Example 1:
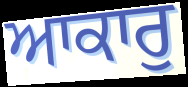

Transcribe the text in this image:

ਆਕਾਰੁ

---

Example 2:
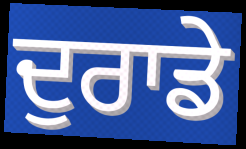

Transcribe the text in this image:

ਦੁਰਾਡੇ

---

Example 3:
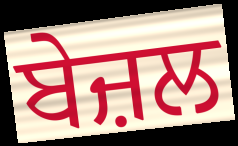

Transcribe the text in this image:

ਬੇਜ਼ਲ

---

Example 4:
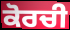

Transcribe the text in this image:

ਕੋਰਚੀ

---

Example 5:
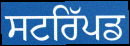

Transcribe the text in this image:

ਸਟਰਿੱਪਡ